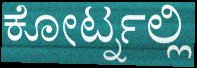
ಕೋರ್ಟ್ನಲ್ಲಿ